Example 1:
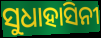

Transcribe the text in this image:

ସୁଧାହାସିନୀ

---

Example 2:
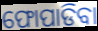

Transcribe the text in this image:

ଫୋପାଡିବା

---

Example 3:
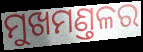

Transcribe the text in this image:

ମୁଖମଣ୍ତଳର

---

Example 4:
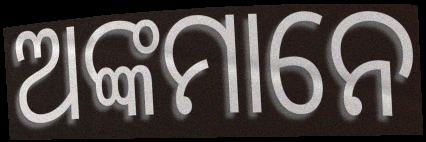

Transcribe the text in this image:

ଅଙ୍କମାନେ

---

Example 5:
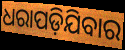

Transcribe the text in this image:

ଧରାପଡ଼ିଯିବାର